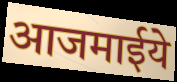
आजमाईये